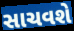
સાચવશે